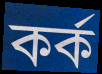
কৰ্ক